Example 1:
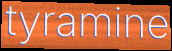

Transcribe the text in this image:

tyramine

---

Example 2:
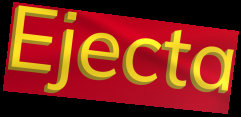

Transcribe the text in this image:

Ejecta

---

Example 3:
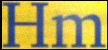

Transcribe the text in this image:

Hm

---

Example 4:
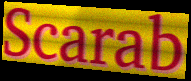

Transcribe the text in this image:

Scarab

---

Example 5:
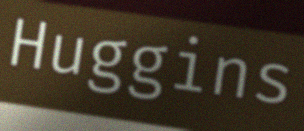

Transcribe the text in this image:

Huggins